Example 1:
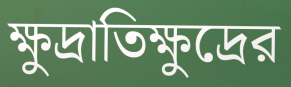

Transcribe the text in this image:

ক্ষুদ্রাতিক্ষুদ্রের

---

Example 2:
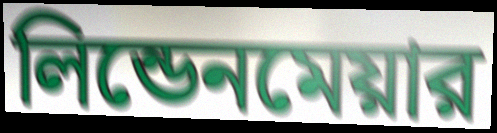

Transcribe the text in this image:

লিন্ডেনমেয়ার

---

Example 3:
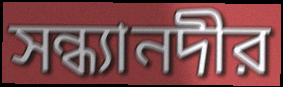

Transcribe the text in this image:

সন্ধ্যানদীর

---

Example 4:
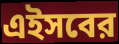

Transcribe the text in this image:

এইসবের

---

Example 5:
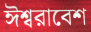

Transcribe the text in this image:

ঈশ্বরাবেশ